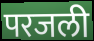
परजली